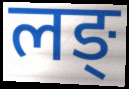
लङ्